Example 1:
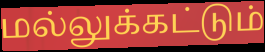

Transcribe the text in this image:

மல்லுக்கட்டும்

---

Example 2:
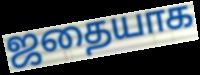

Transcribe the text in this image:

ஜதையாக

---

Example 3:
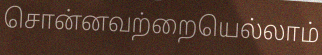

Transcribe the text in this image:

சொன்னவற்றையெல்லாம்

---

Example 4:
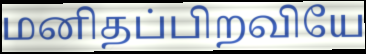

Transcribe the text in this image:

மனிதப்பிறவியே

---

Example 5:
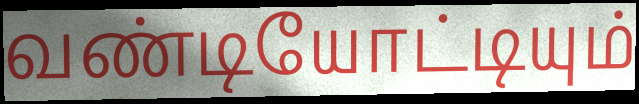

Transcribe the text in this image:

வண்டியோட்டியும்